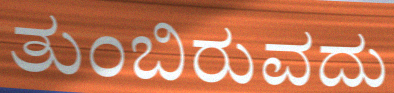
ತುಂಬಿರುವದು